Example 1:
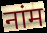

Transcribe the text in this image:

नांम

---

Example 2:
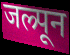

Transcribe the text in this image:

जल्पून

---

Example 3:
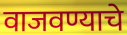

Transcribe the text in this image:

वाजवण्याचे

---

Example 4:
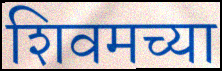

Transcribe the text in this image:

शिवमच्या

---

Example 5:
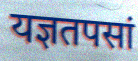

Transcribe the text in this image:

यज्ञतपसां